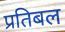
प्रतिबल